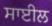
ਸਾਈਲ